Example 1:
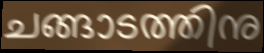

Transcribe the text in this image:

ചങ്ങാടത്തിനു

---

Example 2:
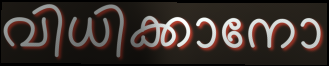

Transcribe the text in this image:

വിധിക്കാനോ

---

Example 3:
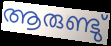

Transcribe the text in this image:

ആരുണ്ടു്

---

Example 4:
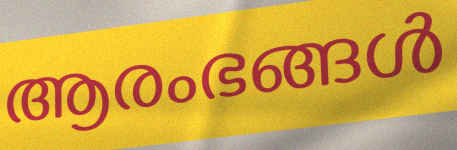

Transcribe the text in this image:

ആരംഭങ്ങൾ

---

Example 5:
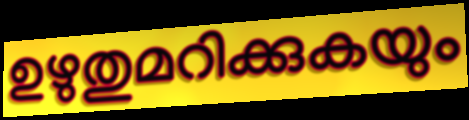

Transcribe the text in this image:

ഉഴുതുമറിക്കുകയും